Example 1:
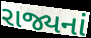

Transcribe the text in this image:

રાજ્યનાં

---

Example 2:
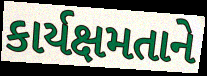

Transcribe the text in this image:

કાર્યક્ષમતાને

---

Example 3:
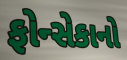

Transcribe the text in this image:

ફોન્સેકાનો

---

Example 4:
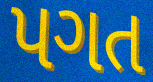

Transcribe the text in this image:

પગત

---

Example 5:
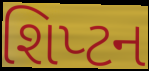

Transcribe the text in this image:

શિપ્ટન